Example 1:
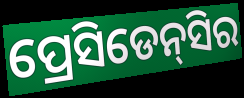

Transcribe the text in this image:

ପ୍ରେସିଡେନ୍‌ସିର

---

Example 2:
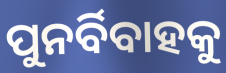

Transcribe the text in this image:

ପୁନର୍ବିବାହକୁ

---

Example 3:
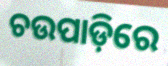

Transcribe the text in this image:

ଚଉପାଡ଼ିରେ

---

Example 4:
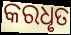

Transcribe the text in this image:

କରଧୃତ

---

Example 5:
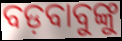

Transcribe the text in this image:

ବଡ଼ବାବୁଙ୍କୁ